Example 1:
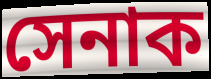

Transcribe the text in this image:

সেনাক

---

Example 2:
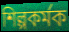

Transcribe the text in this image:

শিল্পকৰ্মক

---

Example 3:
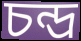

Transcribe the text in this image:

চন্দ্ৰ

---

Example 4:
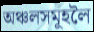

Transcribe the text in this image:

অঞ্চলসমূহলৈ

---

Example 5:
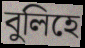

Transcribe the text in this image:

বুলিহে